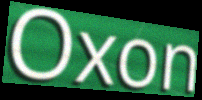
Oxon